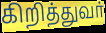
கிறித்துவர்